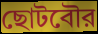
ছোটবৌর